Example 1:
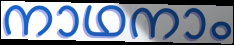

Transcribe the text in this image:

നാഥനാം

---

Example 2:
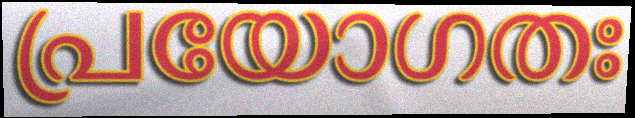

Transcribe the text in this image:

പ്രയോഗതഃ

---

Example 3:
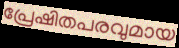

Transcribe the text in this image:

പ്രേഷിതപരവുമായ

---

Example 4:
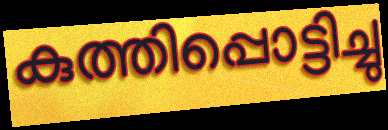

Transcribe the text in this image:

കുത്തിപ്പൊട്ടിച്ചു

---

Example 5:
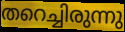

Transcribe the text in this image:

തറെച്ചിരുന്നു